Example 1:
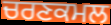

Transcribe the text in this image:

ਚਰਣਕਮਲ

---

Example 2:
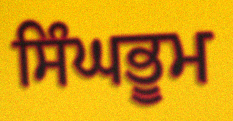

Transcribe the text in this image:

ਸਿੰਘਭੂਮ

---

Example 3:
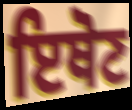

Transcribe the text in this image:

ਇਥੋਣ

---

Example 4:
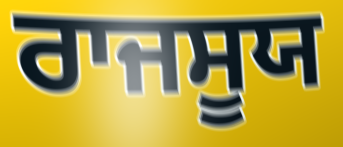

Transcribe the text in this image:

ਰਾਜਸੂਯ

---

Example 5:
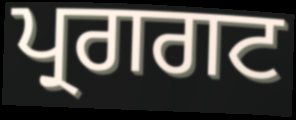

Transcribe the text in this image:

ਪ੍ਰਗਗਟ